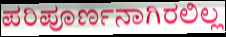
ಪರಿಪೂರ್ಣನಾಗಿರಲಿಲ್ಲ